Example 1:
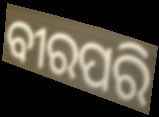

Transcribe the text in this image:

ବୀରପରି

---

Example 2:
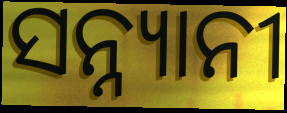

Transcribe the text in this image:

ସନ୍ନ୍ୟାନୀ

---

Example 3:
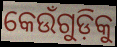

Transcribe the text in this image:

କେଉଁଗୁଡ଼ିକୁ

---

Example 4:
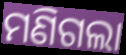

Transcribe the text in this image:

ମଣିଗଲା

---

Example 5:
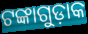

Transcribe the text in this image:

ଟଙ୍କାଗୁଡ଼ାକ